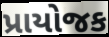
પ્રાયોજક